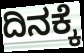
ದಿನಕ್ಕೆ